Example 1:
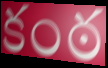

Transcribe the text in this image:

కంఠ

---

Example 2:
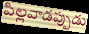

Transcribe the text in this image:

పిల్లవాడప్పుడు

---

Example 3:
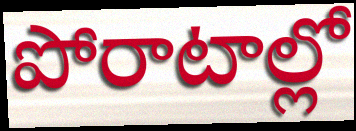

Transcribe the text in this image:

పోరాటాల్లో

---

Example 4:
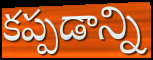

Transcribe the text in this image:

కప్పడాన్ని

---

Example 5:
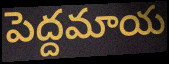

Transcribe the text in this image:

పెద్దమాయ